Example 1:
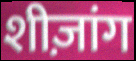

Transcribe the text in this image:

शीज़ांग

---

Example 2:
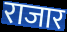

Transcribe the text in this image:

राजार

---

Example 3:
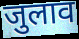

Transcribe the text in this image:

जुलाव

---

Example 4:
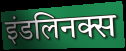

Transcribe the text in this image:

इंडलिनक्स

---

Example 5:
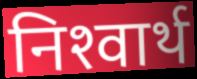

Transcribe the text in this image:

निश्वार्थ